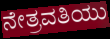
ನೇತ್ರವತಿಯು